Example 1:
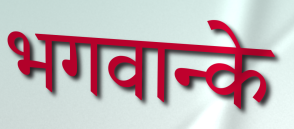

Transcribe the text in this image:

भगवान्के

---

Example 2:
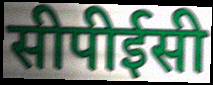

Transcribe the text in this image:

सीपीईसी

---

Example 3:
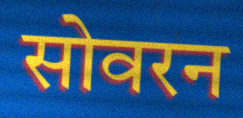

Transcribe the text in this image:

सोवरन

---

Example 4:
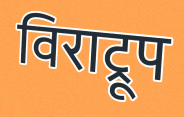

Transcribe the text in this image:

विराट्रूप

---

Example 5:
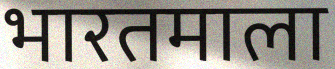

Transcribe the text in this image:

भारतमाला